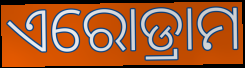
ଏରୋଡ୍ରାମ